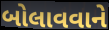
બોલાવવાને